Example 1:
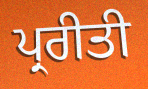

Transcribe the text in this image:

ਪ੍ਰਰੀਤੀ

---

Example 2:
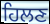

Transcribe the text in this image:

ਹਿਲਣ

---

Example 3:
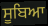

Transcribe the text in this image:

ਸੂਬਿਆ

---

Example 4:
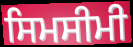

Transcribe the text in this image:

ਸਿਮਸੀਮੀ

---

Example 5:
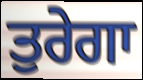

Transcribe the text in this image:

ਤੁਰੇਗਾ